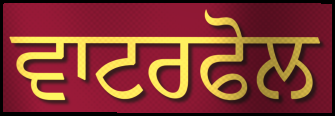
ਵਾਟਰਫੋਲ